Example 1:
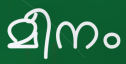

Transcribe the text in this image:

മീനം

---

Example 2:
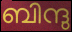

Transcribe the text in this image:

ബിന്ദു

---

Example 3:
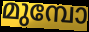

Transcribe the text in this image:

മുമ്പോ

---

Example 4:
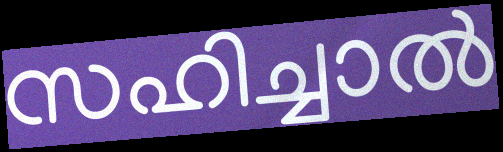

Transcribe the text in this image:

സഹിച്ചാൽ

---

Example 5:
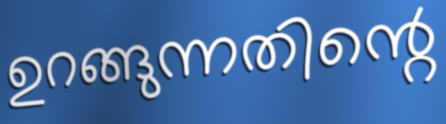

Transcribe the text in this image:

ഉറങ്ങുന്നതിന്റെ